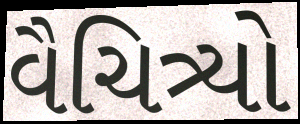
વૈચિત્ર્યો